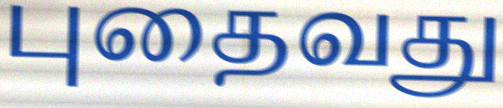
புதைவது